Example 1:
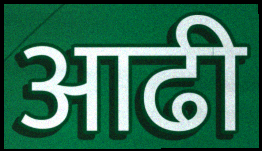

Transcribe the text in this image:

आढी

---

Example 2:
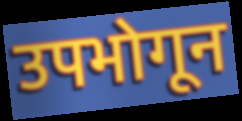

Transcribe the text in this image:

उपभोगून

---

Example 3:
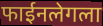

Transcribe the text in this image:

फाईनलेगला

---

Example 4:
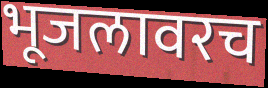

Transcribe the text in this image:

भूजलावरच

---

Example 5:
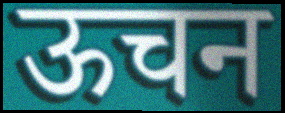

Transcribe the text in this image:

ऊचन